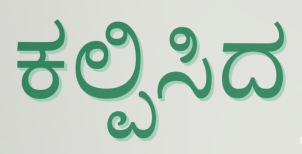
ಕಲ್ಪಿಸಿದ